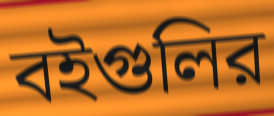
বইগুলির